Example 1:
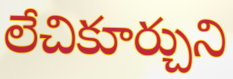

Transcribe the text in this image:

లేచికూర్చుని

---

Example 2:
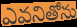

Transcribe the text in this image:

ఎవనితోను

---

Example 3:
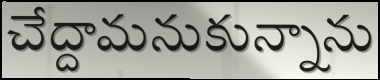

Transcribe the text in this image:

చేద్దామనుకున్నాను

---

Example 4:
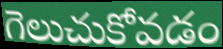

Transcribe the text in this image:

గెలుచుకోవడం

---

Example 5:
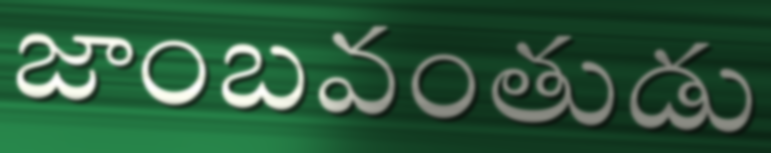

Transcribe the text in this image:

జాంబవంతుడు